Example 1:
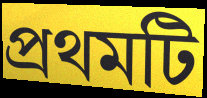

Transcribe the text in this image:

প্ৰথমটি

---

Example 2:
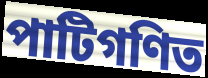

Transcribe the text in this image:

পাটিগণিত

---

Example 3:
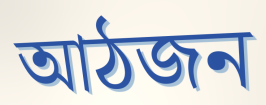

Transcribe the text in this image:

আঠজন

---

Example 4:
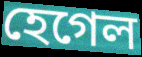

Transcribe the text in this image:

হেগেল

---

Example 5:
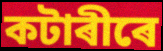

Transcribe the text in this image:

কটাৰীৰে